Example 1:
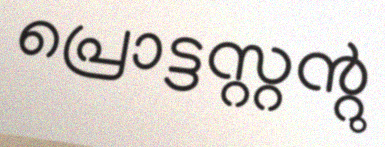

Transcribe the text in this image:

പ്രൊട്ടസ്റ്റന്റു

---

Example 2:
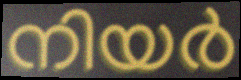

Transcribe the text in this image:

നിയർ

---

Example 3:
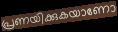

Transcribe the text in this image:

പ്രണയിക്കുകയാണോ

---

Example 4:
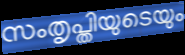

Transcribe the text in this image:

സംതൃപ്തിയുടെയും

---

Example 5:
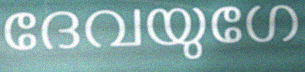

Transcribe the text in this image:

ദേവയുഗേ